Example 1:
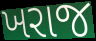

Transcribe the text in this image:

ખરાજ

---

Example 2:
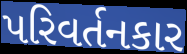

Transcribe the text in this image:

પરિવર્તનકાર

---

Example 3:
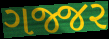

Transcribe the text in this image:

ગજ્જર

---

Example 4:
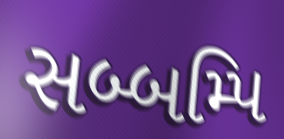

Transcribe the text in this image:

સબ્બમ્પિ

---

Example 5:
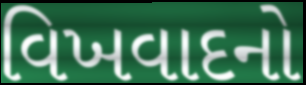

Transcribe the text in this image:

વિખવાદનો